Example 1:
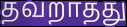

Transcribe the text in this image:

தவறாதது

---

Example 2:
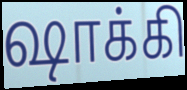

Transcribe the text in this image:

ஷாக்கி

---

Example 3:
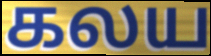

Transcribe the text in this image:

கலய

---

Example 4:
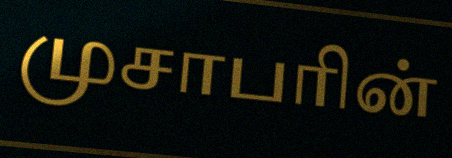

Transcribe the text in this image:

முசாபரின்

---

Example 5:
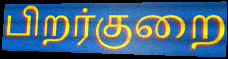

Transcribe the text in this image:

பிறர்குறை